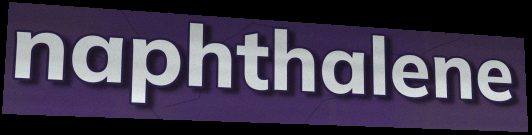
naphthalene